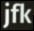
jfk